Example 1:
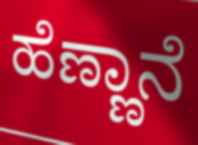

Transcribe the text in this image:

ಹೆಣ್ಣಾನೆ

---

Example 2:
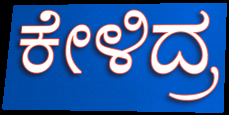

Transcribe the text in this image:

ಕೇಳಿದ್ರ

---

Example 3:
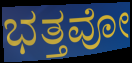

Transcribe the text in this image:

ಭತ್ತವೋ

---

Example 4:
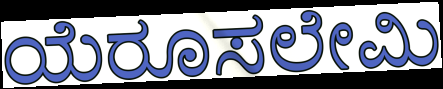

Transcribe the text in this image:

ಯೆರೂಸಲೇಮಿ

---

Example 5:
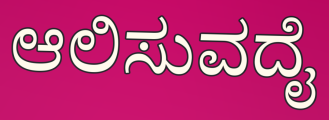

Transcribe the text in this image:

ಆಲಿಸುವದೈ